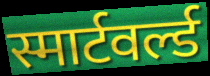
स्मार्टवर्ल्ड